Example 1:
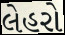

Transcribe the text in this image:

લેહરો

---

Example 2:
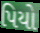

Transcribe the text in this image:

પિયો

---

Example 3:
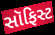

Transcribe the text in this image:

સૉફિસ્ટ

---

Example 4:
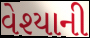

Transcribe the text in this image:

વેશ્યાની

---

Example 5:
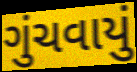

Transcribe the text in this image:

ગુંચવાયું